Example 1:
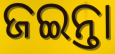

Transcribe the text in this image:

ଜଇନ୍ତା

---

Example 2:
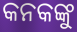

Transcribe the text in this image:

କନକଙ୍କୁ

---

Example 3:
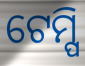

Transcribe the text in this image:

ଟେମ୍ପି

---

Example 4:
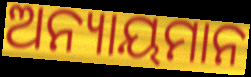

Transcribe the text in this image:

ଅନ୍ୟାୟମାନ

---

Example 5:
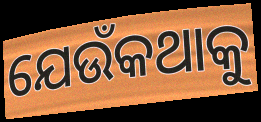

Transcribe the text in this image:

ଯେଉଁକଥାକୁ